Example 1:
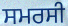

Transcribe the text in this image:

ਸਮਰਸੀ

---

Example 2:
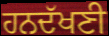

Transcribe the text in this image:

ਹਨਦੱਖਣੀ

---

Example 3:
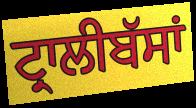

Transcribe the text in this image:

ਟ੍ਰਾਲੀਬੱਸਾਂ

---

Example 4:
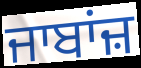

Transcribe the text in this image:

ਜਾਬਾਂਜ਼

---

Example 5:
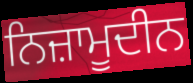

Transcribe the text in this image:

ਨਿਜ਼ਾਮੂਦੀਨ